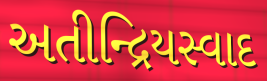
અતીન્દ્રિયસ્વાદ